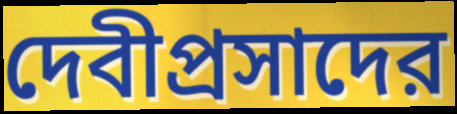
দেবীপ্রসাদের